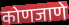
कोणजाणे